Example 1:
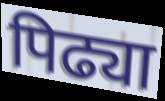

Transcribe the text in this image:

पिढ्या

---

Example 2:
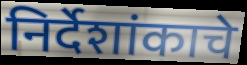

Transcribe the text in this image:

निर्देशांकाचे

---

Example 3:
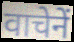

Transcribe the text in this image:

वाचेनें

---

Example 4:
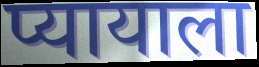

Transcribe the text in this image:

प्यायाला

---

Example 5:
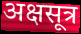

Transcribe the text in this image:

अक्षसूत्र